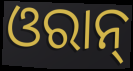
ଓରାନ୍